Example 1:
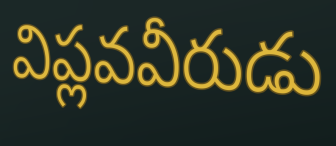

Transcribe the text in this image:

విప్లవవీరుడు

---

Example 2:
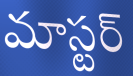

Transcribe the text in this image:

మాస్టర్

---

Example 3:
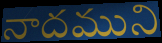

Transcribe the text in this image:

నాదముని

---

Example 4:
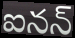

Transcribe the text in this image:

ఐనన్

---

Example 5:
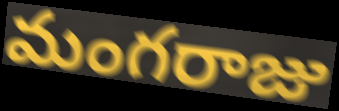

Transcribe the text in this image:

మంగరాజు